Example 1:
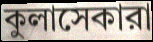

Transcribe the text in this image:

কুলাসেকারা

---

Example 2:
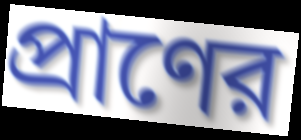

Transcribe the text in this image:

প্রাণের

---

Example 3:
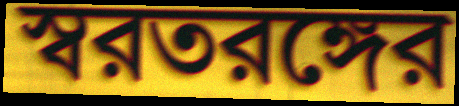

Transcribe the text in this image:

স্বরতরঙ্গের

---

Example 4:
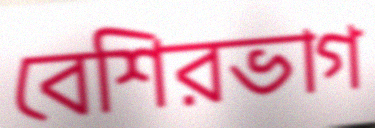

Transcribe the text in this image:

বেশিরভাগ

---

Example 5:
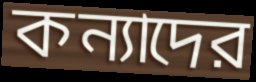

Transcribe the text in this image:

কন্যাদের